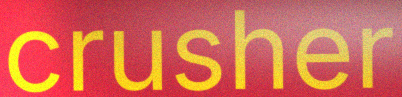
crusher